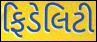
ફિડેલિટી